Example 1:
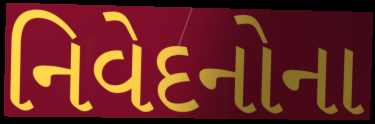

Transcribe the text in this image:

નિવેદનોના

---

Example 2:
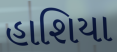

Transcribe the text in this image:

હાશિયા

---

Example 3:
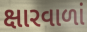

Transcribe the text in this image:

ક્ષારવાળાં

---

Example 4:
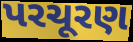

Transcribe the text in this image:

પરચૂરણ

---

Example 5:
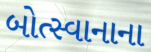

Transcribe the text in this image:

બોત્સ્વાનાના